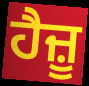
ਹੈਜ਼ੂ